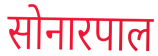
सोनारपाल